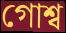
গোশ্ব